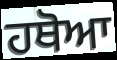
ਹਥੋਆ